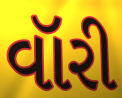
વૉરી